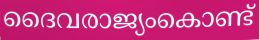
ദൈവരാജ്യംകൊണ്ട്